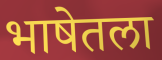
भाषेतला